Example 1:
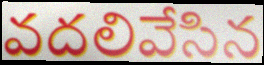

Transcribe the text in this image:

వదలివేసిన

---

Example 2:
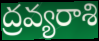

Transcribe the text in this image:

ద్రవ్యరాశి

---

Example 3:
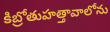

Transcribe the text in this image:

కిబ్రోతుహత్తావాలోను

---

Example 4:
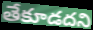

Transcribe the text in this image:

తేకూడదని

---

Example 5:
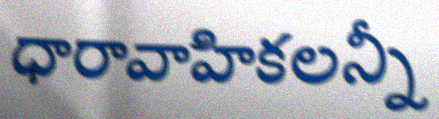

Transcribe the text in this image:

ధారావాహికలన్నీ